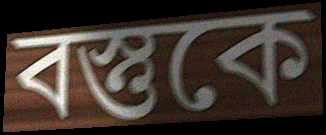
বস্তুকে